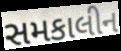
સમકાલીન